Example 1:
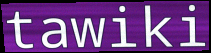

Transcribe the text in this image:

tawiki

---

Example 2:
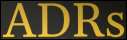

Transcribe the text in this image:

ADRs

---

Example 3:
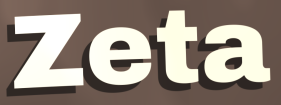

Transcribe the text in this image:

Zeta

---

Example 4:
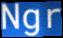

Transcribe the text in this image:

Ngr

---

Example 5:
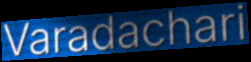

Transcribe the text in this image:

Varadachari